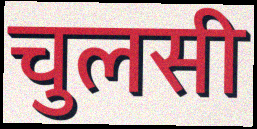
चुलसी